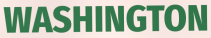
WASHINGTON